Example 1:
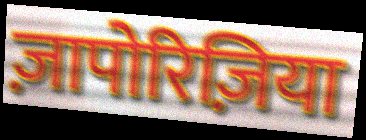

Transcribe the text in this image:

ज़ापोरिज़िया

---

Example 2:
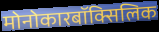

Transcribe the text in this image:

मोनोकारबॉक्सिलिक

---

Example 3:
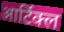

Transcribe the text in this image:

आर्टिक्ल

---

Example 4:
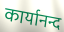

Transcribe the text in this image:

कार्यानन्द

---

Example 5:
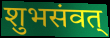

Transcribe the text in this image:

शुभसंवत्